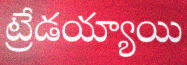
ట్రేడయ్యాయి